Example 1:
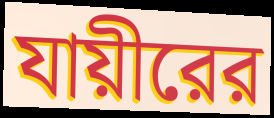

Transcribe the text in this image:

যায়ীরের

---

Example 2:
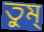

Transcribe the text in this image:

তুম্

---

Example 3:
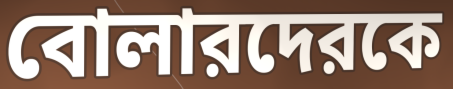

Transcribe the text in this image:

বোলারদেরকে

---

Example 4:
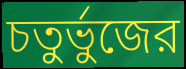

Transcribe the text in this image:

চতুর্ভুজের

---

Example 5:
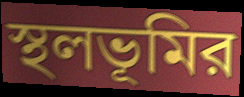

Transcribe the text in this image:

স্থলভূমির